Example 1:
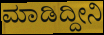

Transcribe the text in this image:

ಮಾಡಿದ್ದೀನಿ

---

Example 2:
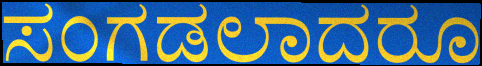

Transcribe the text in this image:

ಸಂಗಡಲಾದರೂ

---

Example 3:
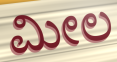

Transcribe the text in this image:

ಮೀಲ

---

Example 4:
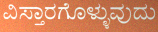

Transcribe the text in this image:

ವಿಸ್ತಾರಗೊಳ್ಳುವುದು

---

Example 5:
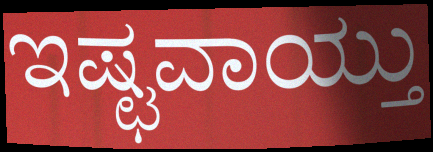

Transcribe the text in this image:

ಇಷ್ಟವಾಯ್ತು